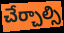
చేర్చాల్సి